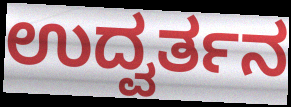
ಉದ್ವರ್ತನ